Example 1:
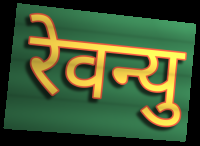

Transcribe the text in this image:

रेवन्यु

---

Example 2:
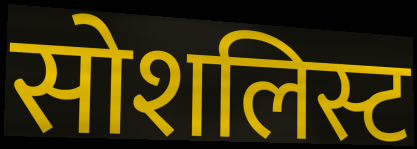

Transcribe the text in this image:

सोशलिस्‍ट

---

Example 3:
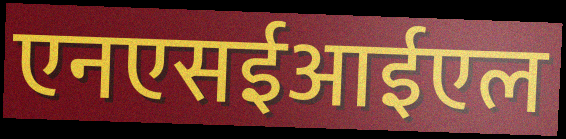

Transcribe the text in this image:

एनएसईआईएल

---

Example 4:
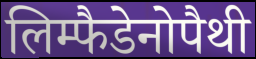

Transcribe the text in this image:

लिम्फैडेनोपैथी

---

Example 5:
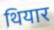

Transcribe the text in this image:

थियार